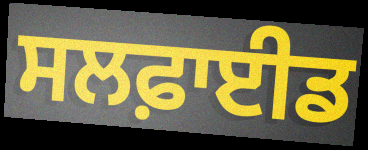
ਸਲਫ਼ਾਈਡ